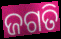
ଜଗତି